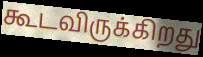
கூடவிருக்கிறது